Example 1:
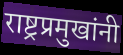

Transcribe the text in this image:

राष्ट्रप्रमुखांनी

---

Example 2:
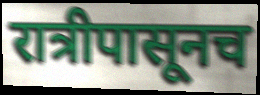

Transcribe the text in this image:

रात्रीपासूनच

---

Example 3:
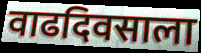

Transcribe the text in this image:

वाढदिवसाला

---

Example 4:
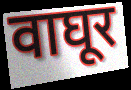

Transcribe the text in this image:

वाघूर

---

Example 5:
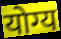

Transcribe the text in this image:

योग्य